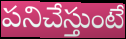
పనిచేస్తుంటే